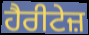
ਹੈਰੀਟੇਜ਼